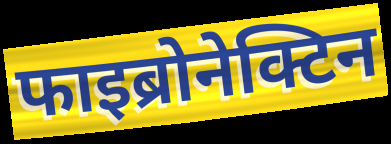
फाइब्रोनेक्टिन